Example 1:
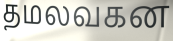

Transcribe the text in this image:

தமலவகன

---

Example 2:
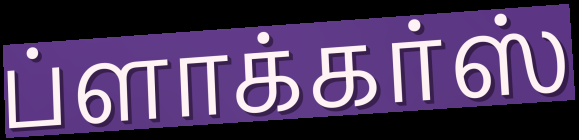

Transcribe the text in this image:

ப்ளாக்கர்ஸ்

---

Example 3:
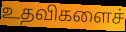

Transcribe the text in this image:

உதவிகளைச்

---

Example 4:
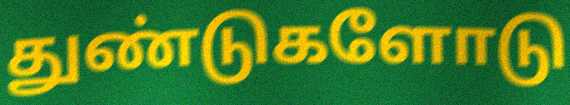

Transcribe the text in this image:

துண்டுகளோடு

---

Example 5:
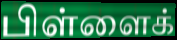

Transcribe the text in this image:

பிள்ளைக்